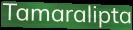
Tamaralipta